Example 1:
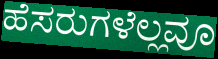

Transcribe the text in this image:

ಹೆಸರುಗಳೆಲ್ಲವೂ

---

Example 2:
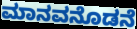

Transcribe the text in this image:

ಮಾನವನೊಡನೆ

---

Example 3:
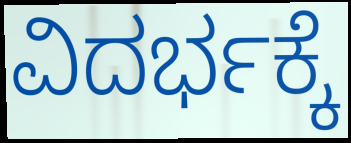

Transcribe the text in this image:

ವಿದರ್ಭಕ್ಕೆ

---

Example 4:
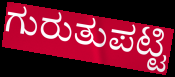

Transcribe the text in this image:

ಗುರುತುಪಟ್ಟಿ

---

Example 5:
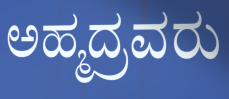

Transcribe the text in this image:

ಅಹ್ಮದ್ರವರು